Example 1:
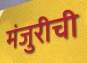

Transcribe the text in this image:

मंजुरीची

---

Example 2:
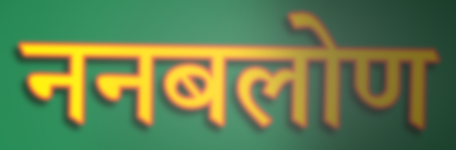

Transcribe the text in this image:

ननबलोण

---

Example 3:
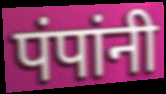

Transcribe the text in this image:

पंपांनी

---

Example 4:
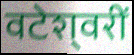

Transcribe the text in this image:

वटेश्वरीं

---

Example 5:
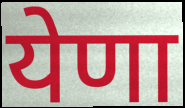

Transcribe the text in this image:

येणा